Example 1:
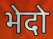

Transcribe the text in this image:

भेदो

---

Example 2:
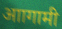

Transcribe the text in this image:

आागामी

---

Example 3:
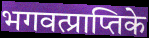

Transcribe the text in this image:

भगवत्प्राप्तिके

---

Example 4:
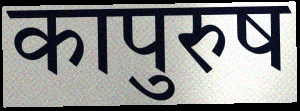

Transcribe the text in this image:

कापुरुष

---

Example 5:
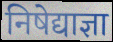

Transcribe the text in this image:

निषेद्याज्ञा